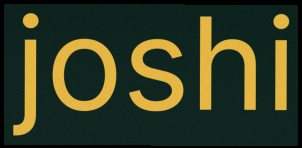
joshi